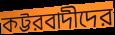
কট্টরবাদীদের